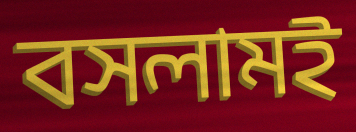
বসলামই